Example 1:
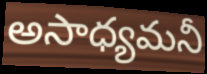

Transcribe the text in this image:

అసాధ్యమనీ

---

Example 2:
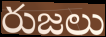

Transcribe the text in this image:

రుజలు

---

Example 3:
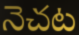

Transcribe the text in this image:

నెచట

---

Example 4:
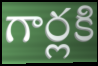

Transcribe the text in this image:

గార్లకి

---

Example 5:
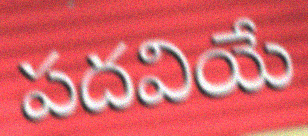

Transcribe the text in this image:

పదవియే